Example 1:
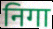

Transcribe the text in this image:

निगा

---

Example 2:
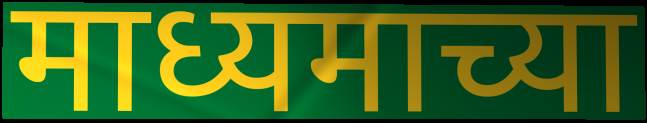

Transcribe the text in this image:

माध्यमाच्या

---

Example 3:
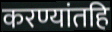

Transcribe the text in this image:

करण्यांतहि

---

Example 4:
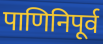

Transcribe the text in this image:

पाणिनिपूर्व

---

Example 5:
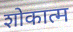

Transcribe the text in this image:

शोकात्म